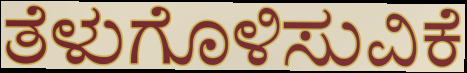
ತೆಳುಗೊಳಿಸುವಿಕೆ